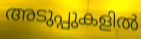
അടുപ്പുകളിൽ